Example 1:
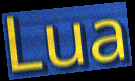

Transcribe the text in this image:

Lua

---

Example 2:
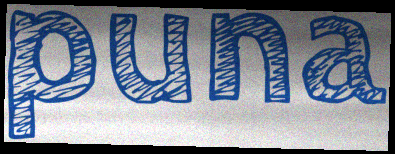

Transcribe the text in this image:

puna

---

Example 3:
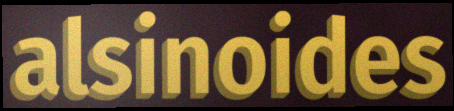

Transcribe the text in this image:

alsinoides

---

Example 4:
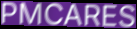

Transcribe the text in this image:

PMCARES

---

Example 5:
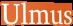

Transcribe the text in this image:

Ulmus